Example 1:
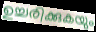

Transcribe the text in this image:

ഉച്ചരിക്കുകയും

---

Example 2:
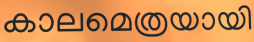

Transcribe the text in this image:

കാലമെത്രയായി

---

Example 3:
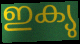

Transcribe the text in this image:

ഇക്യു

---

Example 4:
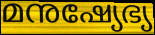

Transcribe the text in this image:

മനുഷ്യേഭ്യ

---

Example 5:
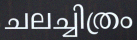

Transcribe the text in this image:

ചലച്ചിത്രം